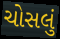
ચોસલું